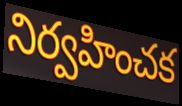
నిర్వహించక